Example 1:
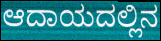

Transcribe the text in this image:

ಆದಾಯದಲ್ಲಿನ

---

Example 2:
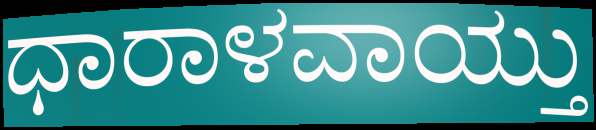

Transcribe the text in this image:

ಧಾರಾಳವಾಯ್ತು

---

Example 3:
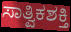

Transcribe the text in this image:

ಸಾತ್ವಿಕಶಕ್ತಿ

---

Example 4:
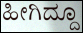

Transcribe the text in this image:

ಹೀಗಿದ್ದೂ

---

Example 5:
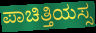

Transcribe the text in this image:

ಪಾಚಿತ್ತಿಯಸ್ಸ